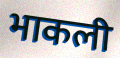
भाकली